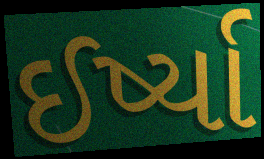
ઈર્ષ્યા